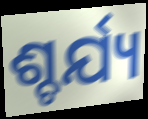
ଶ୍ଚର୍ଯ୍ୟ